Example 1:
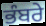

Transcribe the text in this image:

ਭੰਬਰੇ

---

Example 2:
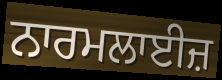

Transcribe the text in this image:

ਨਾਰਮਲਾਈਜ਼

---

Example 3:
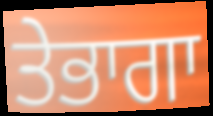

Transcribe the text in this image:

ਤੇਭਾਗਾ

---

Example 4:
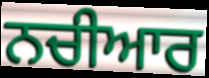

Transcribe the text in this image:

ਨਚੀਆਰ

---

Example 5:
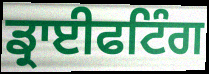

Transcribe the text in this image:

ਡ੍ਰਾਈਫਟਿੰਗ